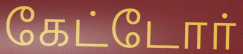
கேட்டோர்